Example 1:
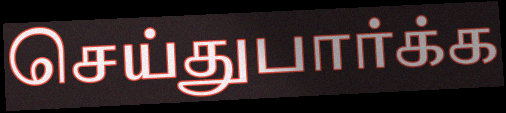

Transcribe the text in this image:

செய்துபார்க்க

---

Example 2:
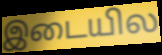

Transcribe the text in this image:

இடையில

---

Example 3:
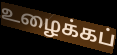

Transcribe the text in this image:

உழைக்கப்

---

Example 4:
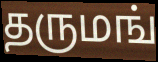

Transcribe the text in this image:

தருமங்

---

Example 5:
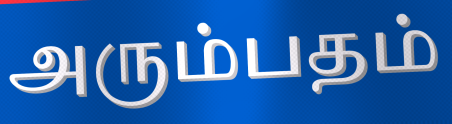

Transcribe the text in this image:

அரும்பதம்